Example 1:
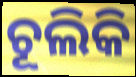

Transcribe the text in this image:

ଚୂଲିକି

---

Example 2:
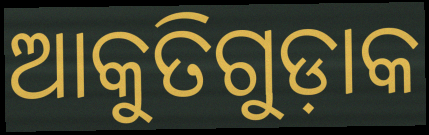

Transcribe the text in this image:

ଆକୁତିଗୁଡ଼ାକ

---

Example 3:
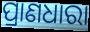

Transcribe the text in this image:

ପ୍ରାଣଧାରା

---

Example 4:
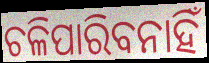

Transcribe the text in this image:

ଚଳିପାରିବନାହିଁ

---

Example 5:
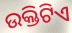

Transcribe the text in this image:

ଉକ୍ତିଟିଏ